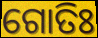
ଗୋତିଃ